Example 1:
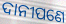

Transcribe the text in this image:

ଦାନୀପଣେ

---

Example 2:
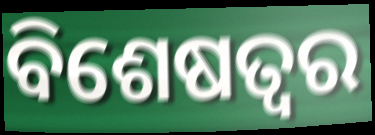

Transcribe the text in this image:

ବିଶେଷତ୍ବର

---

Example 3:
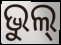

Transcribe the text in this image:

ଭୁଲ୍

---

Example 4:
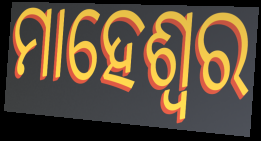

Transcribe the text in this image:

ମାହେଶ୍ଵର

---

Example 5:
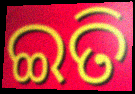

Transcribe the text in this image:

ଇତି